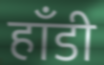
हाँडी